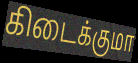
கிடைக்குமா